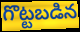
గొట్టబడిన